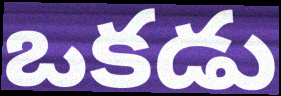
ఒకడు